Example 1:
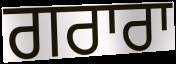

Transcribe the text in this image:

ਗਰਾਰਾ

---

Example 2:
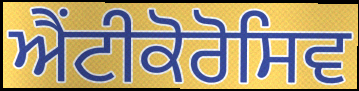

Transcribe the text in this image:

ਐਂਟੀਕੋਰੋਸਿਵ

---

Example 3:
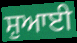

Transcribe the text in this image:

ਸ਼ੁਆਈ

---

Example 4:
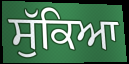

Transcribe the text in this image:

ਸੁੱਕਿਆ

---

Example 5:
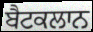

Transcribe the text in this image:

ਬੈਟਕਲਾਨ